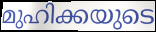
മുഹിക്കയുടെ